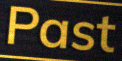
Past